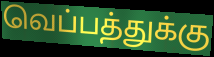
வெப்பத்துக்கு